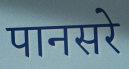
पानसरे